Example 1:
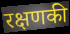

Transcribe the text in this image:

रक्षणकी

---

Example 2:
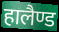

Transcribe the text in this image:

हालैण्ड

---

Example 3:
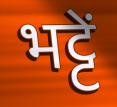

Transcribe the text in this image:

भट्टें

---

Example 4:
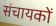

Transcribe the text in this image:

संचायकों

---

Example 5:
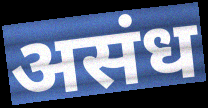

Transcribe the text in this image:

असंध